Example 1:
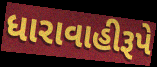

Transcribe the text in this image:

ધારાવાહીરૂપે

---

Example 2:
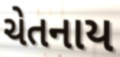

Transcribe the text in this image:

ચેતનાય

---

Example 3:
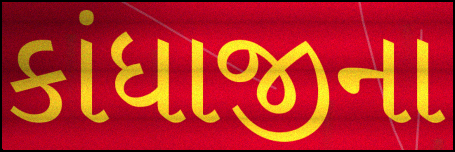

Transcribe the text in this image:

કાંધાજીના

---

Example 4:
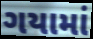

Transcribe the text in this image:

ગયામાં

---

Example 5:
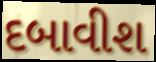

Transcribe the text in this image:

દબાવીશ